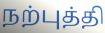
நற்புத்தி